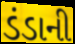
ડંડાની